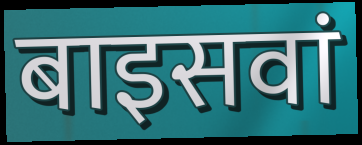
बाइसवां